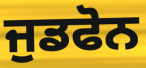
ਜੁਡਫੋਨ